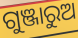
ଗୁଞ୍ଜାରୁଅ